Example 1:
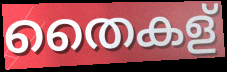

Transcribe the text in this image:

തൈകള്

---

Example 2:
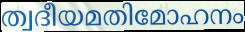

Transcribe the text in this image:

ത്വദീയമതിമോഹനം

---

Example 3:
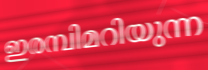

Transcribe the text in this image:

ഇരമ്പിമറിയുന്ന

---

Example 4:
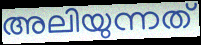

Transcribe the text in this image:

അലിയുന്നത്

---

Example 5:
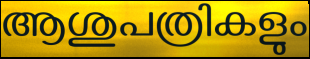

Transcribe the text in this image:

ആശുപത്രികളും